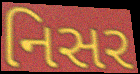
નિસર